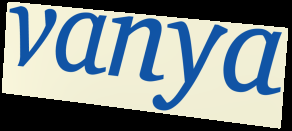
vanya